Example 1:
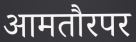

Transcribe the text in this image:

आमतौरपर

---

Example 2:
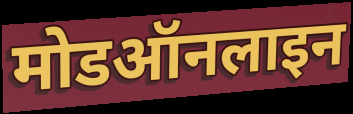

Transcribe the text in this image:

मोडऑनलाइन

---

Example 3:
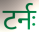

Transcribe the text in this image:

टर्नः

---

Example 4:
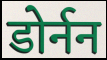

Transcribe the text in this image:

डोर्नन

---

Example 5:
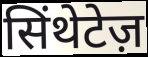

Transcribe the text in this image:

सिंथेटेज़